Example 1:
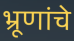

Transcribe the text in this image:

भ्रूणांचे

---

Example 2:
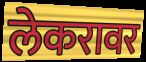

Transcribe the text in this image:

लेकरावर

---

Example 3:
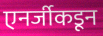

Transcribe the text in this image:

एनर्जीकडून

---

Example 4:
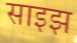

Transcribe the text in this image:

साइझ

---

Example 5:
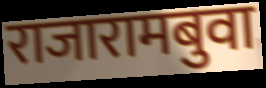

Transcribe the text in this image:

राजारामबुवा